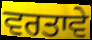
ਵਰਤਾਵੇ